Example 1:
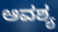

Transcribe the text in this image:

ಆವಶ್ಯ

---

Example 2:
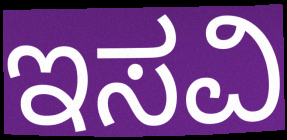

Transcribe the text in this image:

ಇಸವಿ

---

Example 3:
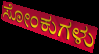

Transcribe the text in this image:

ಸೋಂಕುಗಳು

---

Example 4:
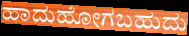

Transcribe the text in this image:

ಹಾದುಹೋಗಬಹುದು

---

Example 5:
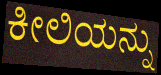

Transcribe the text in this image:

ಕೀಲಿಯನ್ನು